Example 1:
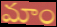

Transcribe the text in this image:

మాం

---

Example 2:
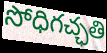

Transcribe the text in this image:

సోధిగచ్ఛతి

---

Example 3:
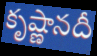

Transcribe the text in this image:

కృష్ణానదీ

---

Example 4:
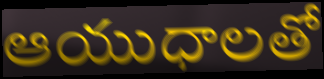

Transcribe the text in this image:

ఆయుధాలతో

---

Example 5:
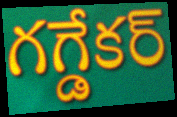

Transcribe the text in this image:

గగ్డేకర్